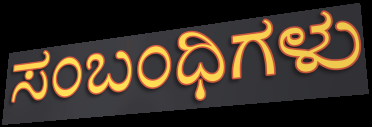
ಸಂಬಂಧಿಗಳು